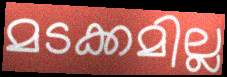
മടക്കമില്ല